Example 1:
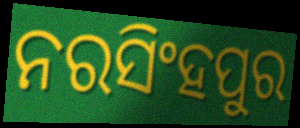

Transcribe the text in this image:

ନରସିଂହପୁର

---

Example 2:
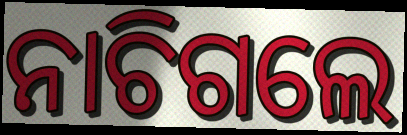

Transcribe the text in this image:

ନାଚିଗଲେ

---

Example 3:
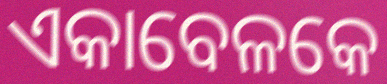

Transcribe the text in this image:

ଏକାବେଳକେ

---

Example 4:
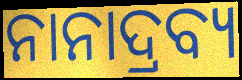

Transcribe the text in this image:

ନାନାଦ୍ରବ୍ୟ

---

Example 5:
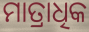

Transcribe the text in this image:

ମାତ୍ରାଧିକ